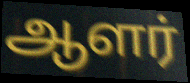
ஆளர்